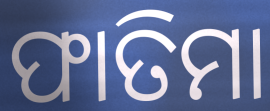
ଫାତିମା